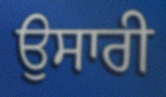
ਉਸਾਰੀ